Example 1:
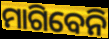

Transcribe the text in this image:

ମାଗିବେନି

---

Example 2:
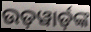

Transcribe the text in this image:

ଉଡ଼ୱାର୍ଡ଼ଙ୍କ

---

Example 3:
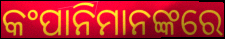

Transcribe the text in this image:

କଂପାନିମାନଙ୍କରେ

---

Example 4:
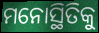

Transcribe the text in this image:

ମନୋସ୍ଥିତିକୁ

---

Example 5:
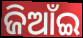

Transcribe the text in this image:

ଜିଆଁଇ